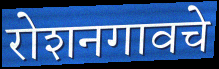
रोशनगावचे